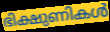
ഭിക്ഷുണികൾ